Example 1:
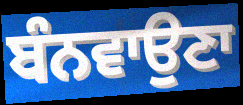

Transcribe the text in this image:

ਬੰਨਵਾਉਣਾ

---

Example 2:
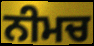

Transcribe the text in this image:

ਨੀਮਚ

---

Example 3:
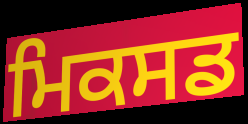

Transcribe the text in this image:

ਮਿਕਸਡ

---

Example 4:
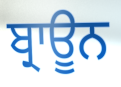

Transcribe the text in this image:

ਬ੍ਰਾਊਨ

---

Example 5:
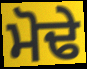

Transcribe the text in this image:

ਮੋਢੇ